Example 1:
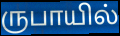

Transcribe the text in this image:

ருபாயில்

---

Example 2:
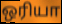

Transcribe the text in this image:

ஒரியா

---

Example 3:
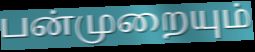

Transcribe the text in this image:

பன்முறையும்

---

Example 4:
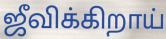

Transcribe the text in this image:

ஜீவிக்கிறாய்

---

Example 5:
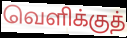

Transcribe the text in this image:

வெளிக்குத்